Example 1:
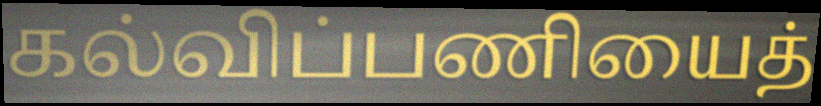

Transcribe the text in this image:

கல்விப்பணியைத்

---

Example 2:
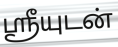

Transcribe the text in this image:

ஸ்ரீயுடன்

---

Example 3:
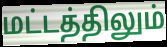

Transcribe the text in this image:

மட்டத்திலும்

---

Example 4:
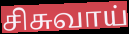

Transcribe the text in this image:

சிசுவாய்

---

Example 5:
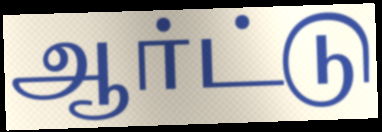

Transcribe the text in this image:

ஆர்ட்டு